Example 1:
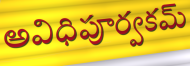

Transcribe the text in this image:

అవిధిపూర్వకమ్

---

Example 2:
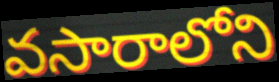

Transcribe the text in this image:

వసారాలోని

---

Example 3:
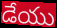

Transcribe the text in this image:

డేయు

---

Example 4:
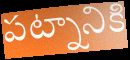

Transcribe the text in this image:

పట్నానికి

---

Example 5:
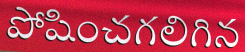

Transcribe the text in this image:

పోషించగలిగిన